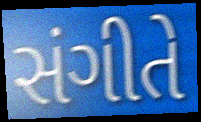
સંગીતે